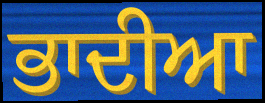
ਭਾਦੀਆ